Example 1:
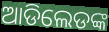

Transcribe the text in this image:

ଆଡିଲେଡଙ୍କ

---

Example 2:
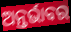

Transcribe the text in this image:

ଅନ୍ତର୍ଭାବର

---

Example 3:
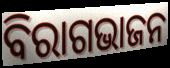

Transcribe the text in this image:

ବିରାଗଭାଜନ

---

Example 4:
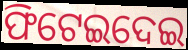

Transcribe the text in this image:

ଫିଟେଇଦେଇ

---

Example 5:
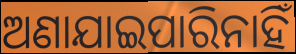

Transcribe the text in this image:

ଅଣାଯାଇପାରିନାହିଁ